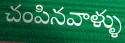
చంపినవాళ్ళు